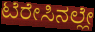
ಟೆರೇಸಿನಲ್ಲೇ